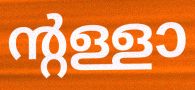
ന്റള്ളാ